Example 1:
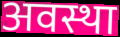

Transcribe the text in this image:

अवस्था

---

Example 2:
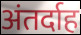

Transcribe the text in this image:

अंतर्दाह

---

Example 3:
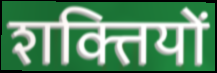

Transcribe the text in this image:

शक्तियों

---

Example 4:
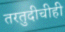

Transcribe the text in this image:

तरतुदीचीही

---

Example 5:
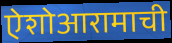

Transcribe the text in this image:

ऐशोआरामाची